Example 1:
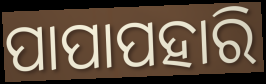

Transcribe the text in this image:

ପାପାପହାରି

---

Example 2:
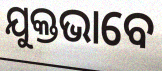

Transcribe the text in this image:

ଯୁକ୍ତଭାବେ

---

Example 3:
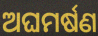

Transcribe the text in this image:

ଅଘମର୍ଷଣ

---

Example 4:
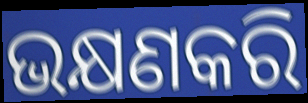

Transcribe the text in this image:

ଭକ୍ଷଣକରି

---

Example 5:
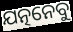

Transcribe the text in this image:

ଯତ୍ନନେବୁ